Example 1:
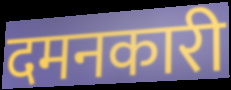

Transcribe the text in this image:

दमनकारी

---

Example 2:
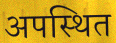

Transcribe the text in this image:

अपस्थित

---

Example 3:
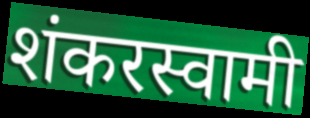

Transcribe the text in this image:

शंकरस्वामी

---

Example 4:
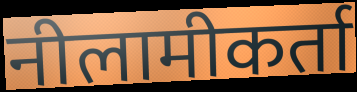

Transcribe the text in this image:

नीलामीकर्ता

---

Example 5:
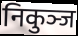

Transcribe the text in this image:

निकुञ्ज